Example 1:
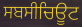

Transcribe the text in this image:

ਸਬਸੀਚਿਊਟ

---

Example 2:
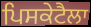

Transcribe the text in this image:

ਪਿਸਕੇਟੈਲਾ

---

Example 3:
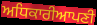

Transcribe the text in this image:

ਅਧਿਕਾਰੀਆਪਣੀ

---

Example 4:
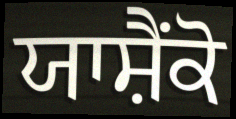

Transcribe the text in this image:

ਯਾਸ਼ੈਂਕੋ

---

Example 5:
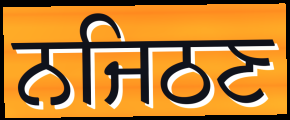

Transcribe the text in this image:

ਨਜਿਠਣ